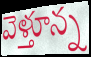
వెళ్తూన్న